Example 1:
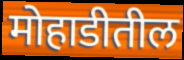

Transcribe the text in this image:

मोहाडीतील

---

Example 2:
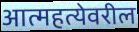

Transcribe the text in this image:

आत्महत्येवरील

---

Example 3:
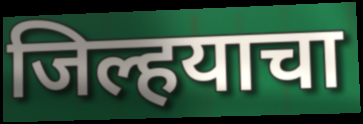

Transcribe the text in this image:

जिल्हयाचा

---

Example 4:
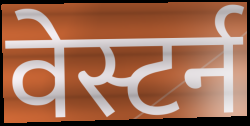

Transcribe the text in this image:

वेस्टर्न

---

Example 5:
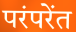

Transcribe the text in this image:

परंपरेंत